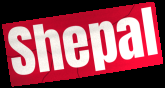
Shepal